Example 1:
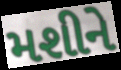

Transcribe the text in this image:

મશીને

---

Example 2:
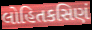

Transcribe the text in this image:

લોહિતકસિણં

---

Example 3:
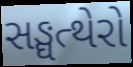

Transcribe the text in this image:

સઙ્ઘત્થેરો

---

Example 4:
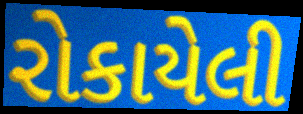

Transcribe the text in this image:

રોકાયેલી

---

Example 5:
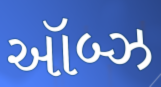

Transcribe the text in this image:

ઑબ્ઝ